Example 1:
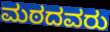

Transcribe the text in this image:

ಮಠದವರು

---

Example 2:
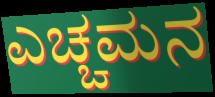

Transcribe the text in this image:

ಎಚ್ಚಮನ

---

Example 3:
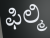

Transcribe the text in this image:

ಫಿಲ್ಮಿ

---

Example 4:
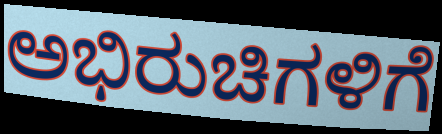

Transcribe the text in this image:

ಅಭಿರುಚಿಗಳಿಗೆ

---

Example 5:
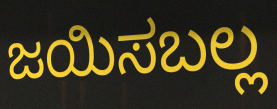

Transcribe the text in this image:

ಜಯಿಸಬಲ್ಲ